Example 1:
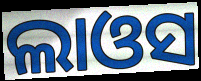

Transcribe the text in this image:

ଲାଓସ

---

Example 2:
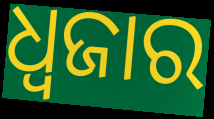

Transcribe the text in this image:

ଧ୍ୱଜାର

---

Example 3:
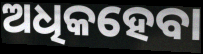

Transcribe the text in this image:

ଅଧିକହେବା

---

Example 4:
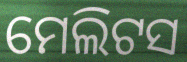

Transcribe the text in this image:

ମେଲିଟସ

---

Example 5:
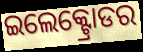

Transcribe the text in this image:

ଇଲେକ୍ଟ୍ରୋଡର